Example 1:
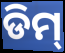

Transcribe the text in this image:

ଡିମ୍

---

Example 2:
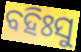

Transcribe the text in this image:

ବହିଃସୁ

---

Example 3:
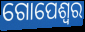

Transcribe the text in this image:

ଗୋପେଶ୍ଵର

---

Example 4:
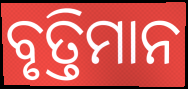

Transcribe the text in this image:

ବୃତ୍ତିମାନ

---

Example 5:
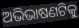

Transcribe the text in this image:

ଅଭିଭାଷଣଟିକୁ